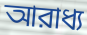
আরাধ্য